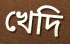
খেদি